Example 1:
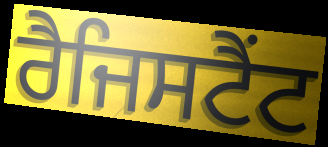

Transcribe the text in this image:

ਰੈਜਿਸਟੈਂਟ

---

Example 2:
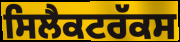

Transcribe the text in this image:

ਸਿਲੈਕਟਰੱਕਸ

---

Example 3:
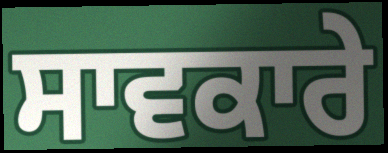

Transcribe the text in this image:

ਸਾਵਕਾਰੇ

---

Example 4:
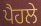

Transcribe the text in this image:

ਪੈਹਲੇ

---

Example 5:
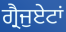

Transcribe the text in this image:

ਗ੍ਰੈਜੁਏਟਾਂ